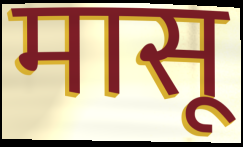
मासू